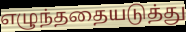
எழுந்ததையடுத்து